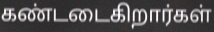
கண்டடைகிறார்கள்